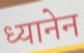
ध्यानेन